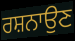
ਰਸ਼ਨਾਉਣ